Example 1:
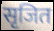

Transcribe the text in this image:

सृजित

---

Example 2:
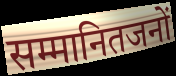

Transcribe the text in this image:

सम्मानितजनों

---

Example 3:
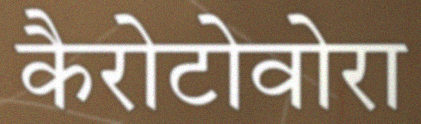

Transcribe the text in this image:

कैरोटोवोरा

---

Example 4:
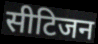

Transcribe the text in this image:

सीटिजन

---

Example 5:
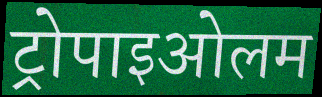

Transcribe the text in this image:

ट्रोपाइओलम